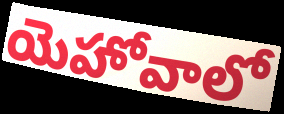
యెహోవాలో